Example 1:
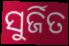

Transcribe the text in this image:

ସୁର୍ଜିତ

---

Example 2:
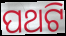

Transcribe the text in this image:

ପଥଟି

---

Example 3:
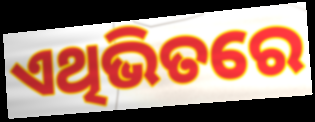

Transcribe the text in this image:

ଏଥିଭିତରେ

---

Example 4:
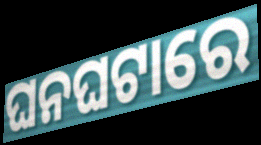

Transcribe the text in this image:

ଘନଘଟାରେ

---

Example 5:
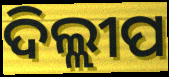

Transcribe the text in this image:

ଦିଲ୍ଲୀପ